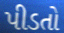
પીડતો